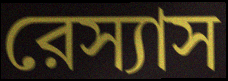
রেস্যাস